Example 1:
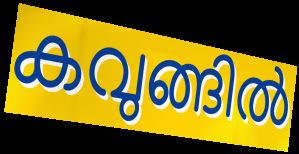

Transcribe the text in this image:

കവുങ്ങിൽ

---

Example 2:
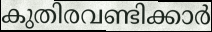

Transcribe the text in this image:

കുതിരവണ്ടിക്കാർ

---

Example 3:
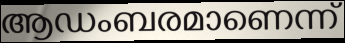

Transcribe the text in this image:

ആഡംബരമാണെന്ന്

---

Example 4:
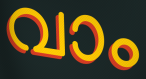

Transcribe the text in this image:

വാം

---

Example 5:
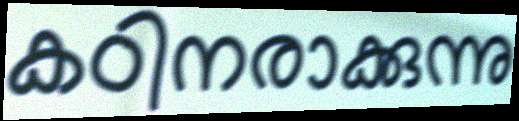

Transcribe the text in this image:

കഠിനരാക്കുന്നു